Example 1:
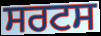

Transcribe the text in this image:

ਸਰਟਸ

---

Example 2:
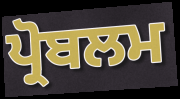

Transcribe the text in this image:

ਪ੍ਰੋਬਲਮ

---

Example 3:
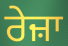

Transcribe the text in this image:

ਰੇਜ਼ਾ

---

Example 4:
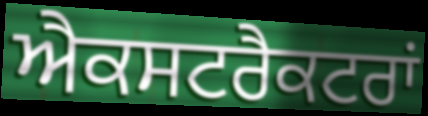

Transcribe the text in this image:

ਐਕਸਟਰੈਕਟਰਾਂ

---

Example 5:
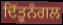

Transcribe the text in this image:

ਦਿੱਤੂਨੰਗਲ